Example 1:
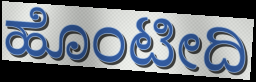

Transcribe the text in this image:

ಹೊಂಟೀದಿ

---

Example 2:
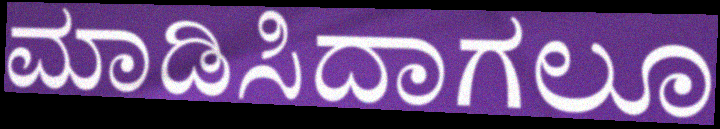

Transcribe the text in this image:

ಮಾಡಿಸಿದಾಗಲೂ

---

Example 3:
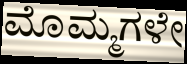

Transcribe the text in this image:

ಮೊಮ್ಮಗಳೇ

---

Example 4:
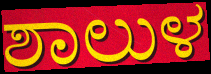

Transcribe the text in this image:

ಶಾಲುಳ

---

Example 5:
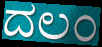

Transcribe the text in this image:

ದಲಂ